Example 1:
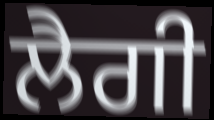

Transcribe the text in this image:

ਲੈਗੀ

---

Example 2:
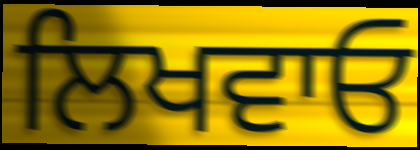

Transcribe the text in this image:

ਲਿਖਵਾਓ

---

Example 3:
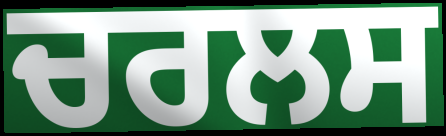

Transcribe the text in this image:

ਚਰਲਸ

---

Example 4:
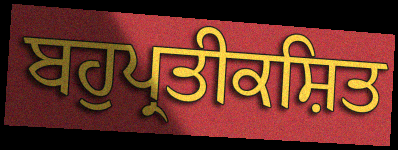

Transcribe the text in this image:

ਬਹੁਪ੍ਰਤੀਕਸ਼ਿਤ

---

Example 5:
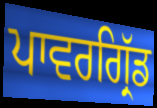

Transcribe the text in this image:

ਪਾਵਰਗ੍ਰਿੱਡ